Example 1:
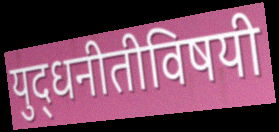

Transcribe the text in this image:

युद्धनीतीविषयी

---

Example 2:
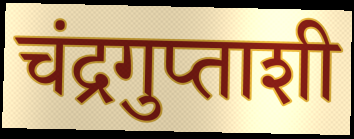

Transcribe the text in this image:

चंद्रगुप्ताशी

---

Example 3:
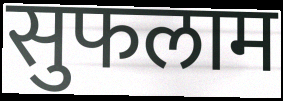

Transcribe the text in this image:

सुफलाम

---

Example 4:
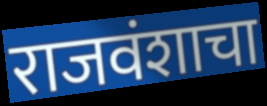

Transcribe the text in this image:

राजवंशाचा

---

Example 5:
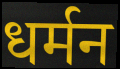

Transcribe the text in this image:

धर्मन